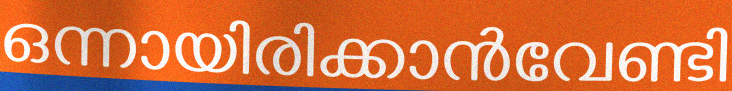
ഒന്നായിരിക്കാൻവേണ്ടി